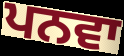
ਪਨਵਾ